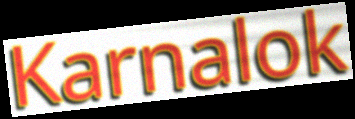
Karnalok